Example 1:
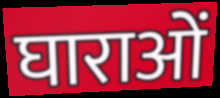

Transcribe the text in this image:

घाराओं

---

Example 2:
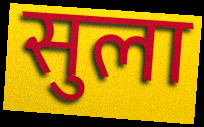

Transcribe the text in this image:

सुला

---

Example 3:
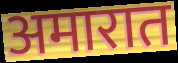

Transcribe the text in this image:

अमारात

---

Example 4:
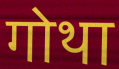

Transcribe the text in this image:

गोथा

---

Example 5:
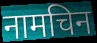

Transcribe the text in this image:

नामचिन